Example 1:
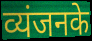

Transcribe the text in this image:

व्यंजनके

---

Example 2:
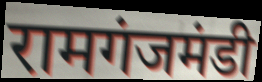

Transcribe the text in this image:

रामगंजमंडी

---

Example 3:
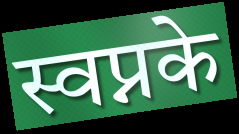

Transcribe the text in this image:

स्वप्नके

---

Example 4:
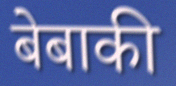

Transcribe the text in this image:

बेबाकी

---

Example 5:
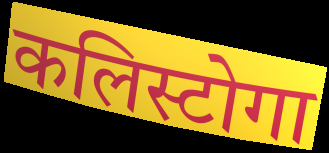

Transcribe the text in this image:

कलिस्टोगा